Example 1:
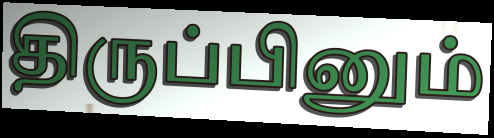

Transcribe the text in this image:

திருப்பினும்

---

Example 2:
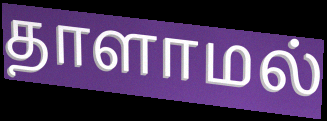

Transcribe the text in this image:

தாளாமல்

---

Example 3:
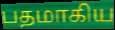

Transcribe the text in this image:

பதமாகிய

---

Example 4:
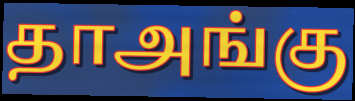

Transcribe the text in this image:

தாஅங்கு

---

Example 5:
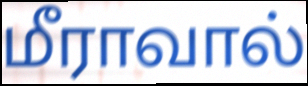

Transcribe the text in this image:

மீராவால்